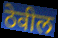
ठेवील